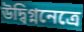
উদ্বিগ্ননেত্রে